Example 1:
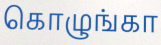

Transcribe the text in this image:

கொழுங்கா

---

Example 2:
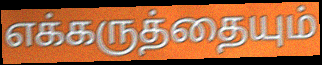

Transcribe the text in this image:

எக்கருத்தையும்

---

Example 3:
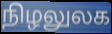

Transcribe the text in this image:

நிழலுலக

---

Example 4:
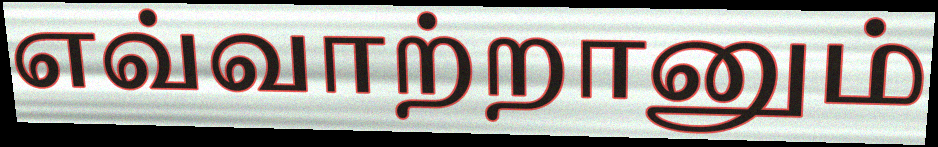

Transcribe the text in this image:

எவ்வாற்றானும்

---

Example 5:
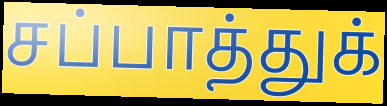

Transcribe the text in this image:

சப்பாத்துக்